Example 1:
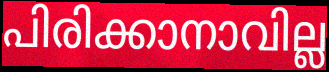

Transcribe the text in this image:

പിരിക്കാനാവില്ല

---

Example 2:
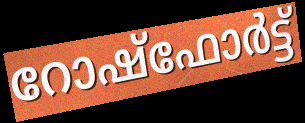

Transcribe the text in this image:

റോഷ്ഫോർട്ട്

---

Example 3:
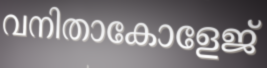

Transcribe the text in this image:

വനിതാകോളേജ്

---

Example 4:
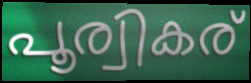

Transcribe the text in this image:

പൂര്വികര്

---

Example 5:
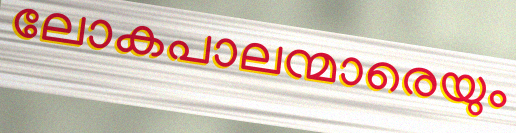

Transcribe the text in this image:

ലോകപാലന്മാരെയും